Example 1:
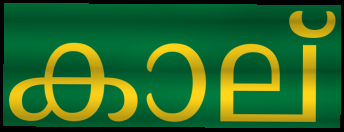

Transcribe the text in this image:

കാല്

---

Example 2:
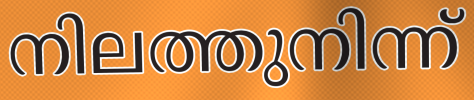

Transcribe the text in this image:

നിലത്തുനിന്ന്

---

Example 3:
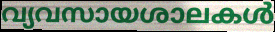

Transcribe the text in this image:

വ്യവസായശാലകൾ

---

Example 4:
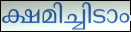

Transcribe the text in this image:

ക്ഷമിച്ചിടാം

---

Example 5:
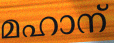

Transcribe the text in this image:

മഹാന്